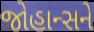
જોહાન્સને